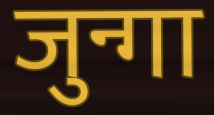
जुन्गा